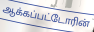
ஆக்கப்பட்டோரின்